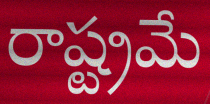
రాష్ట్రమే